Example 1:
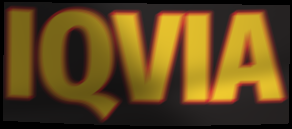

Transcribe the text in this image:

IQVIA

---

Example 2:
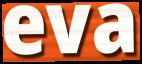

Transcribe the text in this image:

eva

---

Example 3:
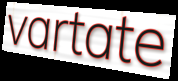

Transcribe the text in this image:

vartate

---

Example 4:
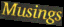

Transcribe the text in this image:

Musings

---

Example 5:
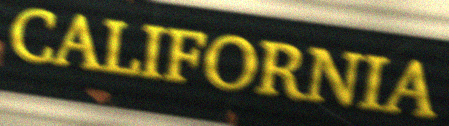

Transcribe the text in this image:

CALIFORNIA